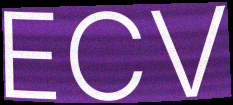
ECV